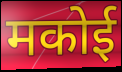
मकोई